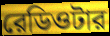
রেডিওটার